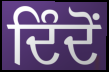
ਦਿੰਦੋਂ